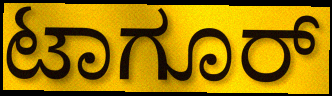
ಟಾಗೂರ್